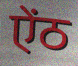
ऐंठ